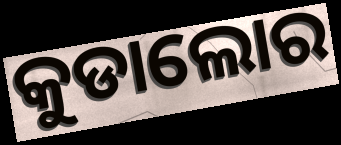
କୁଡାଲୋର